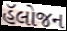
હૅલોજન